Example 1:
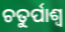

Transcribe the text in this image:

ଚତୁର୍ପାଶ୍ୱ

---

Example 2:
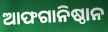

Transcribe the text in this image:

ଆଫଗାନିଷ୍ଠାନ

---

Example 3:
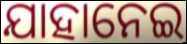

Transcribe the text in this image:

ଯାହାନେଇ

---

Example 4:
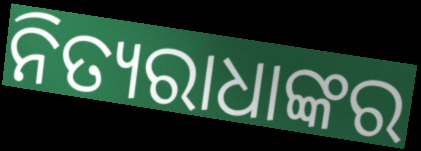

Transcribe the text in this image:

ନିତ୍ୟରାଧାଙ୍କର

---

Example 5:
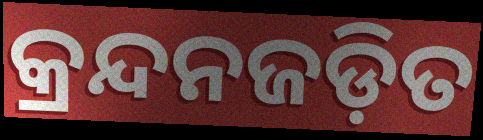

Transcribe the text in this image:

କ୍ରନ୍ଦନଜଡ଼ିତ